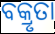
ବକ୍ରୃତା